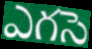
ఎగసె